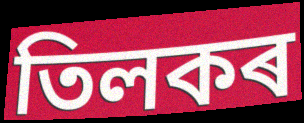
তিলকৰ